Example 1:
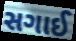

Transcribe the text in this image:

સગાઈ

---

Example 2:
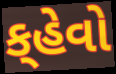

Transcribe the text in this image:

ક્‌હેવો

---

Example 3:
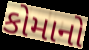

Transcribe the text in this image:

કોમાનો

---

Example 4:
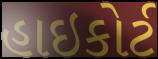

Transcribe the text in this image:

હાઇકોર્ટ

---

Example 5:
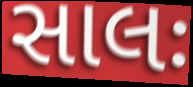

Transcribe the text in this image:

સાલઃ